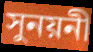
সুনয়নী